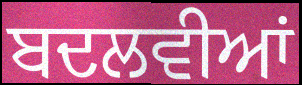
ਬਦਲਵੀਆਂ